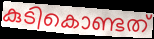
കുടികൊണ്ടത്